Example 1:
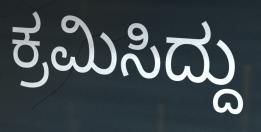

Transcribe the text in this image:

ಕ್ರಮಿಸಿದ್ದು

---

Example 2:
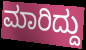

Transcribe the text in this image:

ಮಾರಿದ್ದು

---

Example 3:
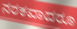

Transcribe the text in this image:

ನರಕವಾದರೂ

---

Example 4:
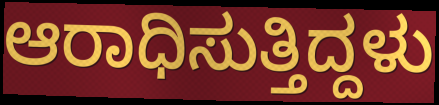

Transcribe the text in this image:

ಆರಾಧಿಸುತ್ತಿದ್ದಳು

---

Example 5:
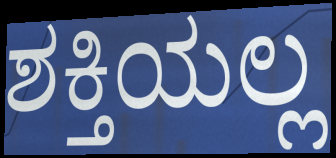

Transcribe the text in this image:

ಶಕ್ತಿಯಲ್ಲ